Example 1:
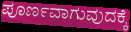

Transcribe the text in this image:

ಪೂರ್ಣವಾಗುವುದಕ್ಕೆ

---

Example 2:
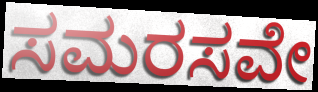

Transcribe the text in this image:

ಸಮರಸವೇ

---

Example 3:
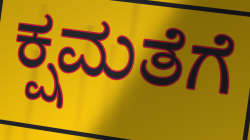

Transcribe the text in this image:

ಕ್ಷಮತೆಗೆ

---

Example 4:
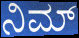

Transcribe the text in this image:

ನಿಮ್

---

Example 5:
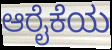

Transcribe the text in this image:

ಆರೈಕೆಯ